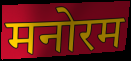
मनोरम